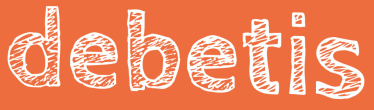
debetis